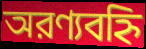
অরণ্যবহ্নি